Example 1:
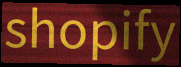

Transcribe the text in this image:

shopify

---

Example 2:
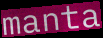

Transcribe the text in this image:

manta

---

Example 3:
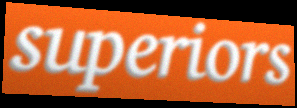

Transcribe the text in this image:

superiors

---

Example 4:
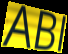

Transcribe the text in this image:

ABI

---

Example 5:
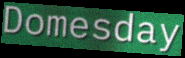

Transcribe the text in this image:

Domesday